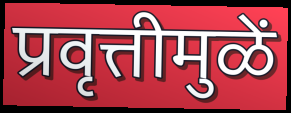
प्रवृत्तीमुळें